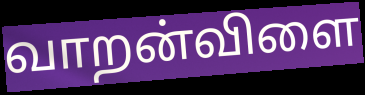
வாறன்விளை